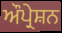
ਔਪ੍ਰੇਸ਼ਨ